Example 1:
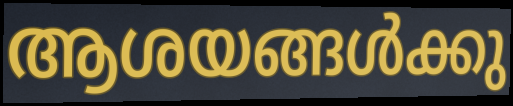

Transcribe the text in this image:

ആശയങ്ങൾക്കു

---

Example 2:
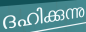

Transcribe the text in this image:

ദഹിക്കുന്നു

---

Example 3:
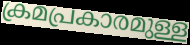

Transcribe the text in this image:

ക്രമപ്രകാരമുള്ള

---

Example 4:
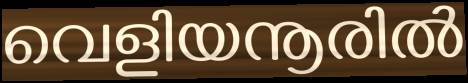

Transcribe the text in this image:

വെളിയനൂരിൽ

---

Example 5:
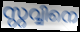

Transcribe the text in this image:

സ്റ്റവ്വിനെ